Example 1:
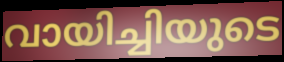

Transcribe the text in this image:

വായിച്ചിയുടെ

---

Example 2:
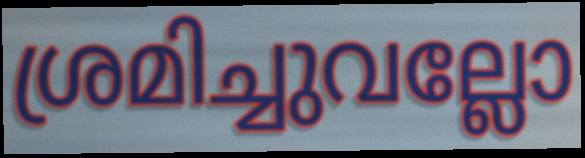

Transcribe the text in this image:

ശ്രമിച്ചുവല്ലോ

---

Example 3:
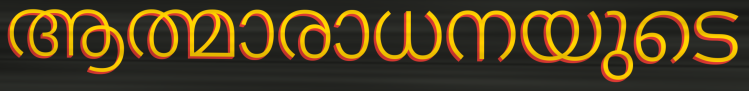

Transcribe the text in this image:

ആത്മാരാധനയുടെ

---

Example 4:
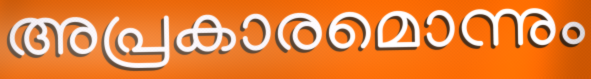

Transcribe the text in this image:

അപ്രകാരമൊന്നും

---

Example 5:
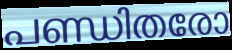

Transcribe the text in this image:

പണ്ഡിതരോ